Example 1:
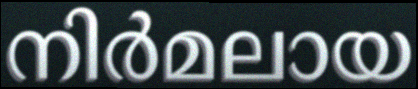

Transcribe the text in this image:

നിർമലായ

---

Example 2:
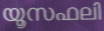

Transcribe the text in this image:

യൂസഫലി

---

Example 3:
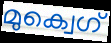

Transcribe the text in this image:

മുക്വെഗ്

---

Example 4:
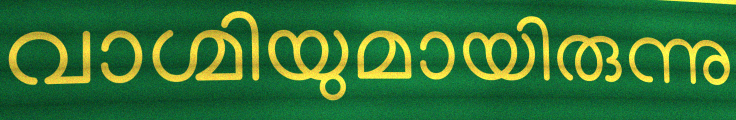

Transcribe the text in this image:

വാഗ്മിയുമായിരുന്നു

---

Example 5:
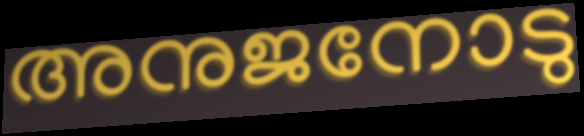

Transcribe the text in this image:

അനുജനോടു